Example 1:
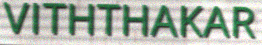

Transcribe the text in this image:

VITHTHAKAR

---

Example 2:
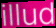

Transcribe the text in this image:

illud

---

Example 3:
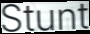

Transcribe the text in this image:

Stunt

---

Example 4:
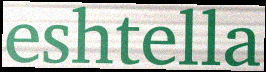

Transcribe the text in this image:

eshtella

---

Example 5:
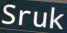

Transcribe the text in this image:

Sruk